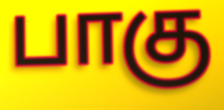
பாகு